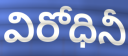
విరోధినీ